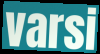
varsi